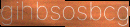
gihbsosbcg